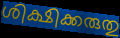
ശിക്ഷിക്കരുതു